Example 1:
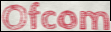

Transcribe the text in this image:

Ofcom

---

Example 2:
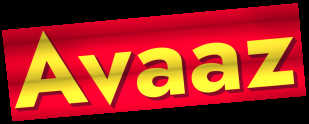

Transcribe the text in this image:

Avaaz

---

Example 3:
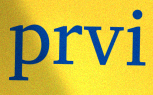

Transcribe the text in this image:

prvi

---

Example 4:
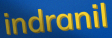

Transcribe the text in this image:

indranil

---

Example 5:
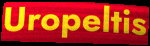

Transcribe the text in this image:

Uropeltis